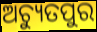
ଅଚ୍ୟୁତପୁର